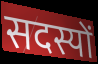
सदस्यों